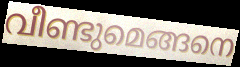
വീണ്ടുമെങ്ങനെ